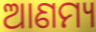
ଆଣମ୍ୟ